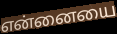
என்னையை